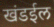
खंडईल